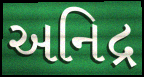
અનિદ્ર